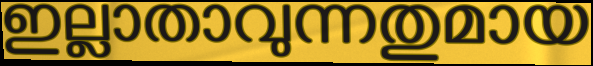
ഇല്ലാതാവുന്നതുമായ